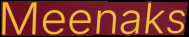
Meenaks